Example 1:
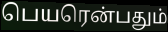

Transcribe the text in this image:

பெயரென்பதும்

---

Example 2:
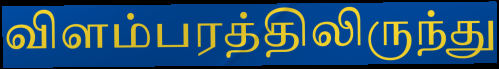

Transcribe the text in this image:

விளம்பரத்திலிருந்து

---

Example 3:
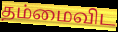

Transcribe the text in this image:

தம்மைவிட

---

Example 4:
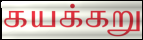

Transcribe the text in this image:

கயக்கறு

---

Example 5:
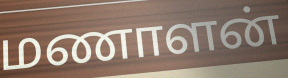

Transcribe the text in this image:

மணாளன்